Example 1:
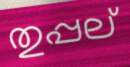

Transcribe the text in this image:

തുപ്പല്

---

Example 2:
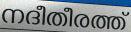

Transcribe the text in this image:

നദീതീരത്ത്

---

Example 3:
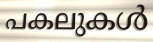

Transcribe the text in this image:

പകലുകൾ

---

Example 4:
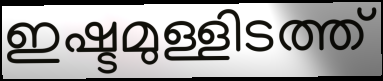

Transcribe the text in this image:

ഇഷ്ടമുള്ളിടത്ത്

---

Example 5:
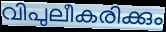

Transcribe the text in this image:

വിപുലീകരിക്കും